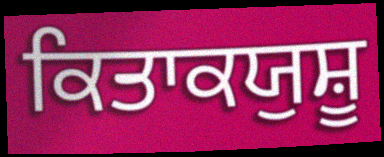
ਕਿਤਾਕਯੁਸ਼ੂ